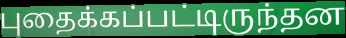
புதைக்கப்பட்டிருந்தன